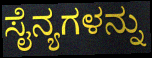
ಸೈನ್ಯಗಳನ್ನು